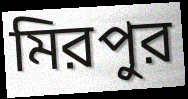
মিরপুর